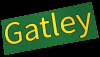
Gatley